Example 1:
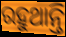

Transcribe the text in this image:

ରହୁଥାନ୍ତି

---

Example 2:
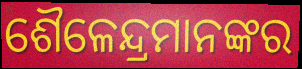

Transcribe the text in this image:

ଶୈଳେନ୍ଦ୍ରମାନଙ୍କର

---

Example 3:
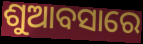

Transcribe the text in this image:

ଶୁଆବସାରେ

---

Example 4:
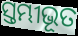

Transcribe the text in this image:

ସ୍ତମ୍ଭୀଭୂତ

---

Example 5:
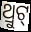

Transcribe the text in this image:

ଥ୍ରୁଟ୍